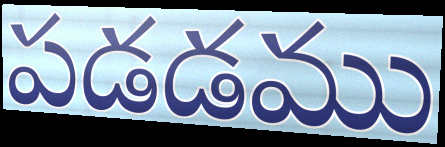
పడడము